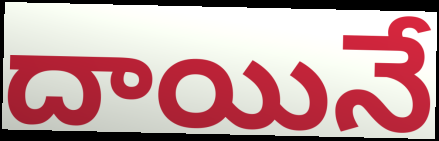
దాయినే